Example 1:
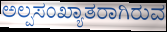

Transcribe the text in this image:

ಅಲ್ಪಸಂಖ್ಯಾತರಾಗಿರುವ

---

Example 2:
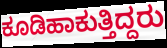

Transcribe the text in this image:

ಕೂಡಿಹಾಕುತ್ತಿದ್ದರು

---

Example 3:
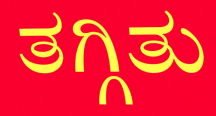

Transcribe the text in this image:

ತಗ್ಗಿತು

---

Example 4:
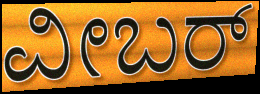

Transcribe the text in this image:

ವೀಬರ್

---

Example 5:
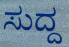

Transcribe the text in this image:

ಸುದ್ದ